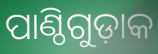
ପାଣ୍ଠିଗୁଡ଼ାକ